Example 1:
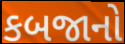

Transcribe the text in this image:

કબજાનો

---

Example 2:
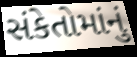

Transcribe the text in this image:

સંકેતોમાંનું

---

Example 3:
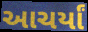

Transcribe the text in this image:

આચર્યાં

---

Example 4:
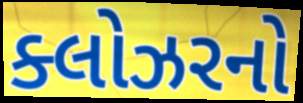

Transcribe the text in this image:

ક્લોઝરનો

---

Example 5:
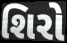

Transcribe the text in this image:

શિરો